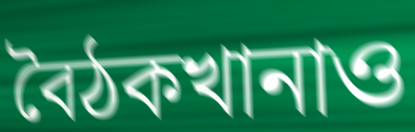
বৈঠকখানাও